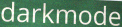
darkmode